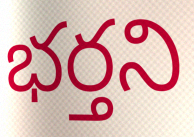
భర్తని